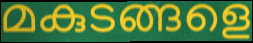
മകുടങ്ങളെ